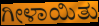
ಗೀಳಾಯಿತು